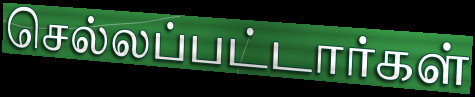
செல்லப்பட்டார்கள்